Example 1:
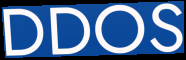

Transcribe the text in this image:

DDOS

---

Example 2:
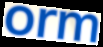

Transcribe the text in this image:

orm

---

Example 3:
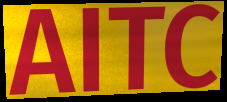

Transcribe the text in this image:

AITC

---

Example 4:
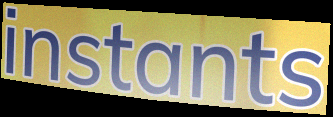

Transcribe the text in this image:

instants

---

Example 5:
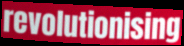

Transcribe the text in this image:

revolutionising